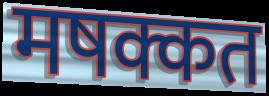
मषक्कत